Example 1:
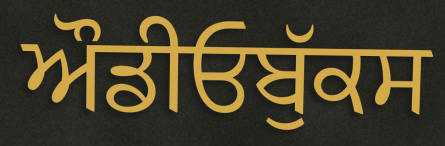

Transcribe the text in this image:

ਔਡੀਓਬੁੱਕਸ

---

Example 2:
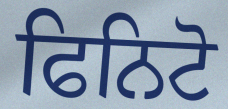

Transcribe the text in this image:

ਫਿਨਿਟੋ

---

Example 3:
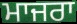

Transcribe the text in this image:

ਮਾਜਰਾ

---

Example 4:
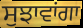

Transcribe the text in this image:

ਸੁਝਾਵਾਂਗਾ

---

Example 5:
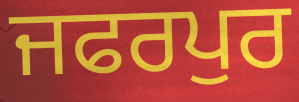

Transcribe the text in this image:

ਜਫਰਪੁਰ